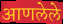
आणलेले